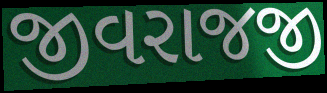
જીવરાજજી